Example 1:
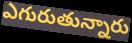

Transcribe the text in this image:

ఎగురుతున్నారు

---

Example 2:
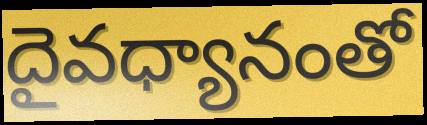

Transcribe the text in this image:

దైవధ్యానంతో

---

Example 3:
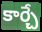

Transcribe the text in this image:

కార్చే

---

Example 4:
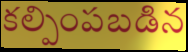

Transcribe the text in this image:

కల్పింపబడిన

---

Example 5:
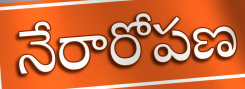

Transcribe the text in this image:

నేరారోపణ